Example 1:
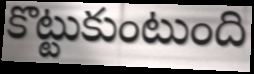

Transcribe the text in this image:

కొట్టుకుంటుంది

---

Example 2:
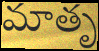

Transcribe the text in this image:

మాతృ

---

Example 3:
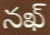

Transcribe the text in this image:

నఖ్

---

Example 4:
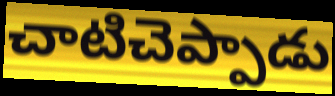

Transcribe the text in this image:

చాటిచెప్పాడు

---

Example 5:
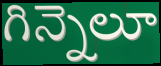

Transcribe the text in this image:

గిన్నెలూ